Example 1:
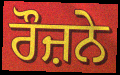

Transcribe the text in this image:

ਰੌਜ਼ਨੇ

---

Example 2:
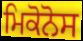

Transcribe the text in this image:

ਮਿਕੋਨੋਸ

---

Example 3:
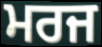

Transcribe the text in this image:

ਮਰਜ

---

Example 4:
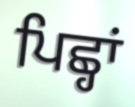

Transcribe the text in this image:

ਪਿਛ੍ਹਾਂ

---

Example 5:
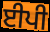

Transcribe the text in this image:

ਈਪੀ